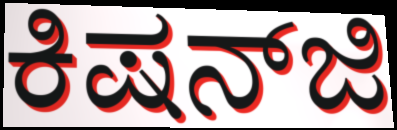
ಕಿಷನ್‌ಜಿ